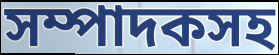
সম্পাদকসহ